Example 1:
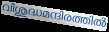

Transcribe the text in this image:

വിശുദ്ധമന്ദിരത്തിൽ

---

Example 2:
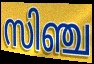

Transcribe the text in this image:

സിഞ്ച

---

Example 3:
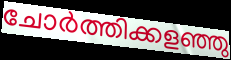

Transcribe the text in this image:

ചോർത്തിക്കളഞ്ഞു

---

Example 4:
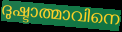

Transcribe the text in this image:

ദുഷ്ടാത്മാവിനെ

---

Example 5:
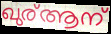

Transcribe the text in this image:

ഖുര്ആന്